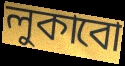
লুকাবো